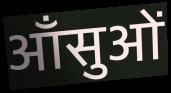
आँसुओं